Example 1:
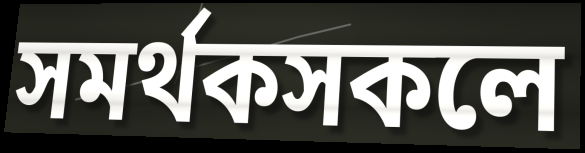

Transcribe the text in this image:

সমৰ্থকসকলে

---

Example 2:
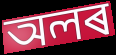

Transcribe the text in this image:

অলৰ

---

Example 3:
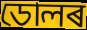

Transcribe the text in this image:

ডোলৰ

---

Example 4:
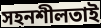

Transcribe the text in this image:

সহনশীলতাই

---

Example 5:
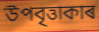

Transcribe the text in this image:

উপবৃত্তাকাৰ